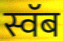
स्वॅब